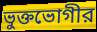
ভুক্তভোগীর